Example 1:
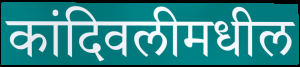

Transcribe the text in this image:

कांदिवलीमधील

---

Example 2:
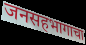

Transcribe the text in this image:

जनसहभागाचा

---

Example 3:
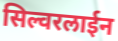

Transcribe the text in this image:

सिल्वरलाईन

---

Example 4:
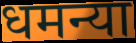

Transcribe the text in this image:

धमन्या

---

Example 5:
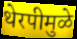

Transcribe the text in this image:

थेरपीमुळे